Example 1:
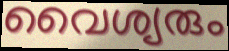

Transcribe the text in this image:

വൈശ്യരും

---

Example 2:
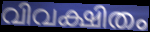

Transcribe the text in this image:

വിവക്ഷിതം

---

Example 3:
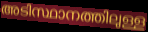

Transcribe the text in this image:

അടിസ്ഥാനത്തിലുള്ള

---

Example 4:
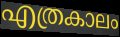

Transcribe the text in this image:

എത്രകാലം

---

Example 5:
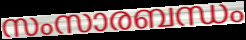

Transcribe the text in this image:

സംസാരബന്ധം